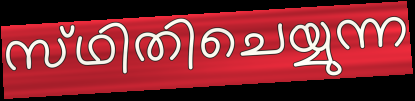
സ്‌ഥിതിചെയ്യുന്ന